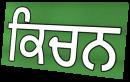
ਕਿਚਨ